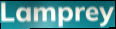
Lamprey